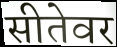
सीतेवर